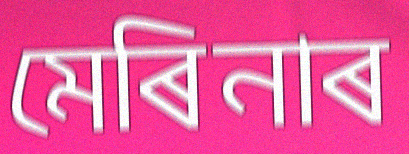
মেৰিনাৰ